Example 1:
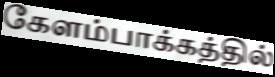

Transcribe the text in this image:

கேளம்பாக்கத்தில்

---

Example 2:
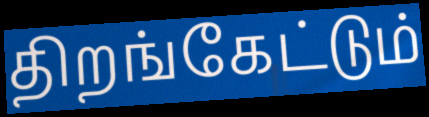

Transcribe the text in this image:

திறங்கேட்டும்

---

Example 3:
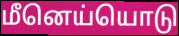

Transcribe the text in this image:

மீனெய்யொடு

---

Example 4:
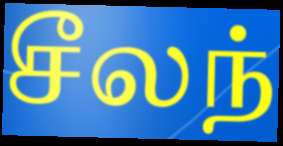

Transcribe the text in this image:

சீலந்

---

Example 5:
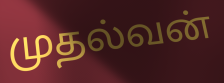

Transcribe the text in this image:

முதல்வன்